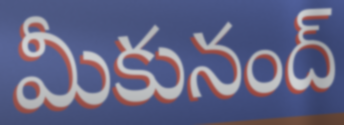
మీకునంద్